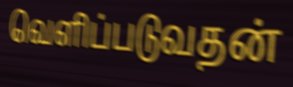
வெளிப்படுவதன்